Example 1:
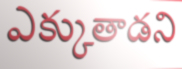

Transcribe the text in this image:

ఎక్కుతాడని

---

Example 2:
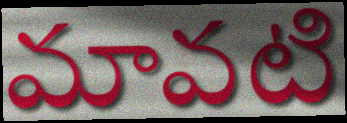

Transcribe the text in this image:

మావటి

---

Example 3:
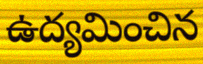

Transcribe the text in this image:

ఉద్యమించిన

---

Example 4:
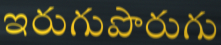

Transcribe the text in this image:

ఇరుగుపొరుగు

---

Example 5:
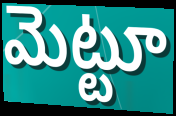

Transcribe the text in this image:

మెట్టూ